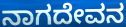
ನಾಗದೇವನ